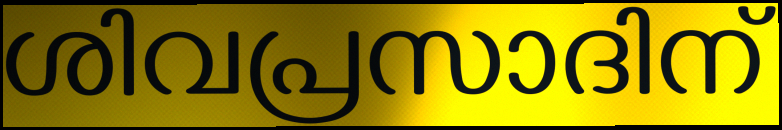
ശിവപ്രസാദിന്